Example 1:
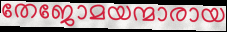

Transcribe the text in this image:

തേജോമയന്മാരായ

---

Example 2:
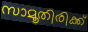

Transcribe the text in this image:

സാമൂതിരിക്ക്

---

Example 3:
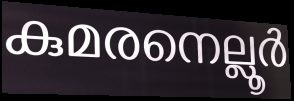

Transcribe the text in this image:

കുമരനെല്ലൂർ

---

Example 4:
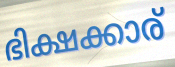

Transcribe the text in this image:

ഭിക്ഷക്കാര്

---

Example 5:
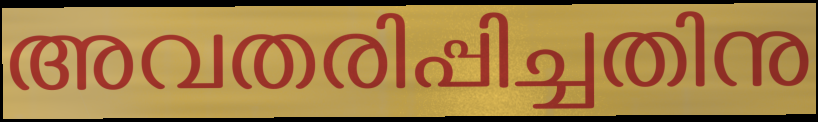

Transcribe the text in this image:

അവതരിപ്പിച്ചതിനു